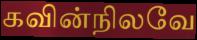
கவின்நிலவே